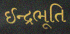
ઈન્દ્રભૂતિ